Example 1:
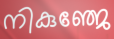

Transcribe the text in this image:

നികുഞ്ജേ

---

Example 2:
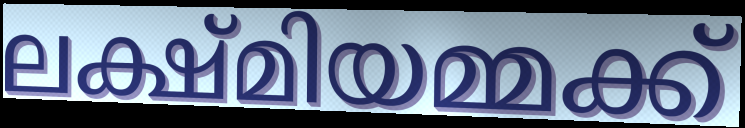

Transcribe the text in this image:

ലക്ഷ്മിയമ്മക്ക്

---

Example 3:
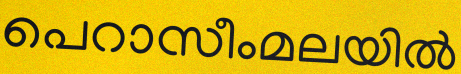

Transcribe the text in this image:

പെറാസീംമലയിൽ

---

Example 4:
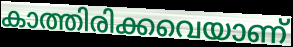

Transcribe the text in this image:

കാത്തിരിക്കവെയാണ്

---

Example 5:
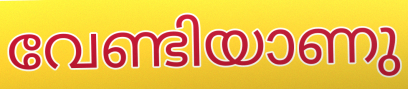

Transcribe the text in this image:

വേണ്ടിയാണു